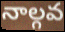
నాల్గవ